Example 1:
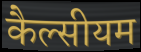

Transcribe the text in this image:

कैल्सीयम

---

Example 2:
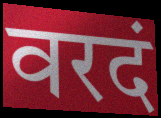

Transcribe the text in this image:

वरदं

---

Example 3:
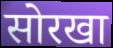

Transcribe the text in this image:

सोरखा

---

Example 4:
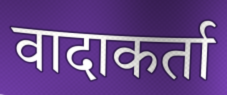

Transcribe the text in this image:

वादाकर्ता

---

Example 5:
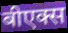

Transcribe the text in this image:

बीएक्स